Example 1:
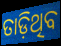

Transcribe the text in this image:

ତାଡ଼ିଥିବ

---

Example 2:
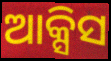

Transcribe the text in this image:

ଆକ୍ସିସ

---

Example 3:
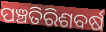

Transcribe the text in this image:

ପଞ୍ଚତିରିଶବର୍ଷ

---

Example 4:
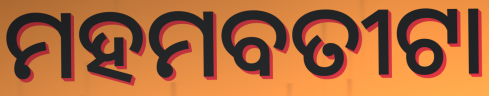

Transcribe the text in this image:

ମହମବତୀଟା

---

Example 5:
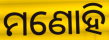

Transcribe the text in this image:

ମଣୋହି